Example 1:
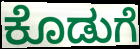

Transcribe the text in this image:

ಕೊಡುಗೆ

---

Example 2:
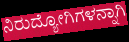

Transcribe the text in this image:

ನಿರುದ್ಯೋಗಿಗಳನ್ನಾಗಿ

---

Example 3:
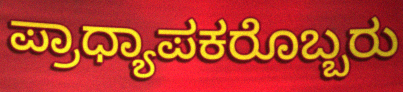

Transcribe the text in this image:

ಪ್ರಾಧ್ಯಾಪಕರೊಬ್ಬರು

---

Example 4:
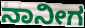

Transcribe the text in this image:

ನಾನೀಗ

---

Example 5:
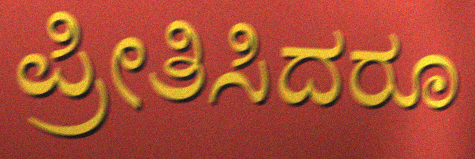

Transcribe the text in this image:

ಪ್ರೀತಿಸಿದರೂ